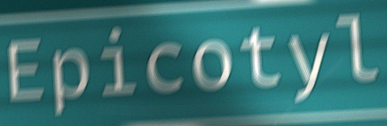
Epicotyl